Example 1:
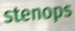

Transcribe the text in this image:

stenops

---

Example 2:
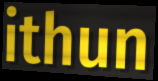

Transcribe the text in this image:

ithun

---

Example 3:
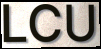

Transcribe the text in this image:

LCU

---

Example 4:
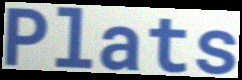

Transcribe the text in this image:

Plats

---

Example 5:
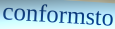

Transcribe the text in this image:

conformsto